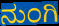
ನುಂಗಿ